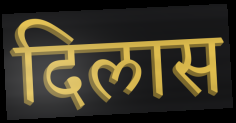
दिलास